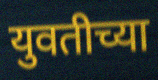
युवतीच्या